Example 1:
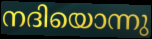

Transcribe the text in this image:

നദിയൊന്നു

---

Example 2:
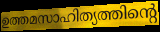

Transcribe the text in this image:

ഉത്തമസാഹിത്യത്തിന്റെ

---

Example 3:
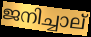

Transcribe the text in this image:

ജനിച്ചാല്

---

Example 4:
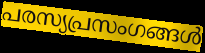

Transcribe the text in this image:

പരസ്യപ്രസംഗങ്ങൾ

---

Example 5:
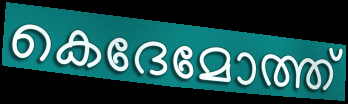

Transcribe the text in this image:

കെദേമോത്ത്